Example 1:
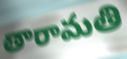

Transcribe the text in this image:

తారామతి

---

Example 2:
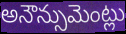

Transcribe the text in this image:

అనౌన్సుమెంట్లు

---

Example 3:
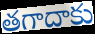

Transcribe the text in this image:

తగాదాకు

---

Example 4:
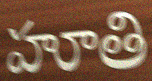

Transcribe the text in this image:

హూతి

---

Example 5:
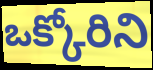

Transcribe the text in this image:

ఒక్కోరిని